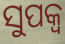
ସୁପକ୍ବ